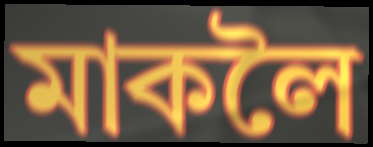
মাকলৈ